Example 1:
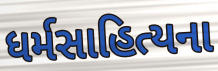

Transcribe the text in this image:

ધર્મસાહિત્યના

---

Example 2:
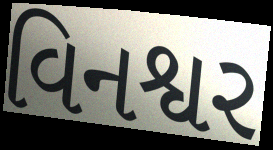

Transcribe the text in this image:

વિનશ્વર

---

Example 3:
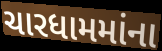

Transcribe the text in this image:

ચારધામમાંના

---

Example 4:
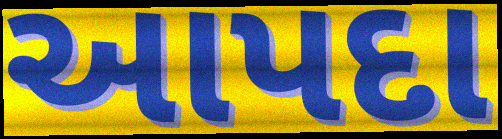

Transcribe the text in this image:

આપદા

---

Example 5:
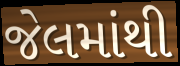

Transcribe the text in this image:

જેલમાંથી